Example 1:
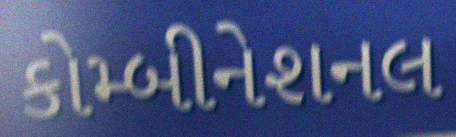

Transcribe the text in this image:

કોમ્બીનેશનલ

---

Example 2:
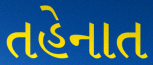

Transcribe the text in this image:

તહેનાત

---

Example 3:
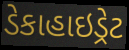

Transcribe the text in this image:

ડેકાહાઇડ્રેટ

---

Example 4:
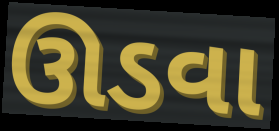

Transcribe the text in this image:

ઊડવા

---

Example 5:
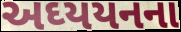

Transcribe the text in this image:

અઘ્યયનના